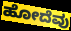
ಹೋದೆವು